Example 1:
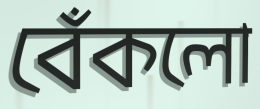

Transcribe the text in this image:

বেঁকলো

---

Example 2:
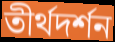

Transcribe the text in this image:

তীর্থদর্শন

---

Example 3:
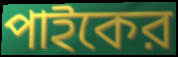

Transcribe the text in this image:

পাইকের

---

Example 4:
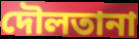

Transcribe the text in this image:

দৌলতানা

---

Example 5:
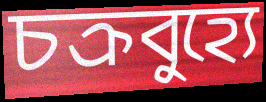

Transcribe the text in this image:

চক্রবুহ্যে